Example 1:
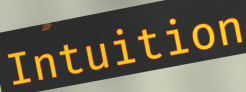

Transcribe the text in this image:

Intuition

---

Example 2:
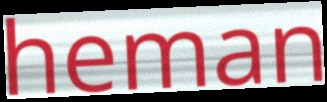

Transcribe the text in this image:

heman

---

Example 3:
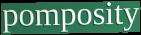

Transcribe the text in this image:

pomposity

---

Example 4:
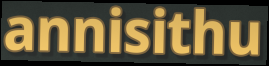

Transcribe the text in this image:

annisithu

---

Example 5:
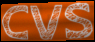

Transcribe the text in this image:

CVS